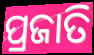
ପ୍ରଜାତି